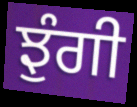
ਝੁੰਗੀ